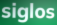
siglos